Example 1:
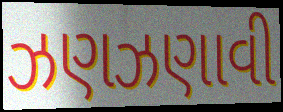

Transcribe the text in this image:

ઝણઝણાવી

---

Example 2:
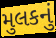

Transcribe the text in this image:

મુલકનું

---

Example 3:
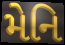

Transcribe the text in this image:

મેનિ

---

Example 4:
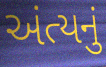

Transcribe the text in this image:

અંત્યનું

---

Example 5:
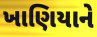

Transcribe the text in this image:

ખાણિયાને